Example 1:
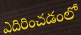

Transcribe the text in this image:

ఎదిరించడంలో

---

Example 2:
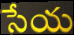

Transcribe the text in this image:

సేయ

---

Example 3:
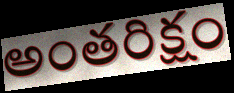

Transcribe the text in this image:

అంతరిక్షం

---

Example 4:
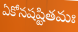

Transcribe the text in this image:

ఏకోనషష్టితమః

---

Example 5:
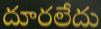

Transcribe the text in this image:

దూరలేదు